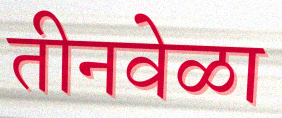
तीनवेळा